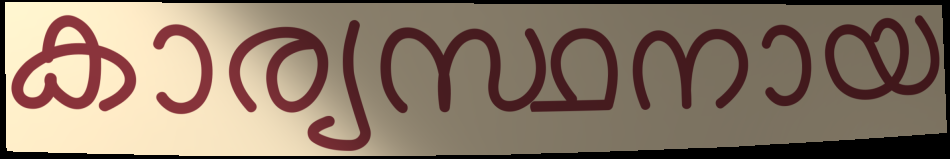
കാര്യസ്ഥനായ